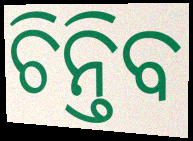
ଚିନ୍ତିବ